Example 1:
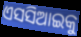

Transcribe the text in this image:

ଏସସିଆଇକୁ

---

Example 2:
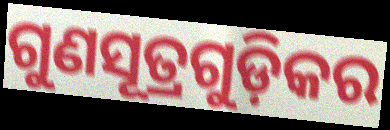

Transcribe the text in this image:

ଗୁଣସୂତ୍ରଗୁଡ଼ିକର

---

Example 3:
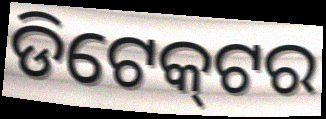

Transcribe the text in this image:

ଡିଟେକ୍‌ଟର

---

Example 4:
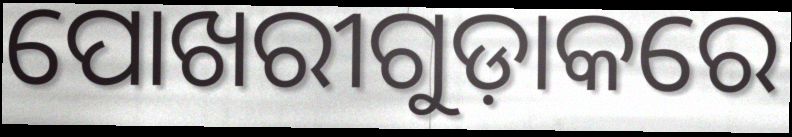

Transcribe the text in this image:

ପୋଖରୀଗୁଡ଼ାକରେ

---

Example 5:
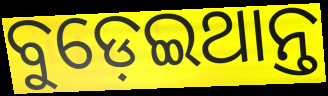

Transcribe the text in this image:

ବୁଡ଼େଇଥାନ୍ତ